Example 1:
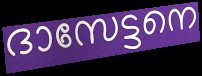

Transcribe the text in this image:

ദാസേട്ടനെ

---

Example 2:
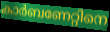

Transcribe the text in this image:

കാർബണേറ്റിനെ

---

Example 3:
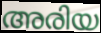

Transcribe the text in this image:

അരിയ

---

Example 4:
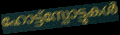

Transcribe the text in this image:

ഹോട്ട്സ്പോട്ടുകൾ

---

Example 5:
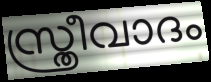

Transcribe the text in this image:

സ്ത്രീവാദം